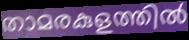
താമരകുളത്തിൽ